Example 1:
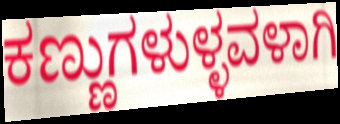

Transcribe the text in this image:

ಕಣ್ಣುಗಳುಳ್ಳವಳಾಗಿ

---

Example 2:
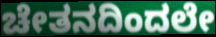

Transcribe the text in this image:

ಚೇತನದಿಂದಲೇ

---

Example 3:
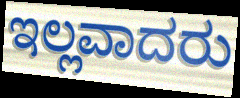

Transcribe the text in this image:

ಇಲ್ಲವಾದರು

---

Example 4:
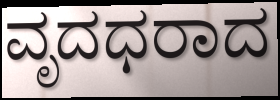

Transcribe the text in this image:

ವೃದಧರಾದ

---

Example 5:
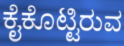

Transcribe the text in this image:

ಕೈಕೊಟ್ಟಿರುವ